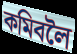
কমিবলৈ